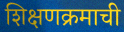
शिक्षणक्रमाची